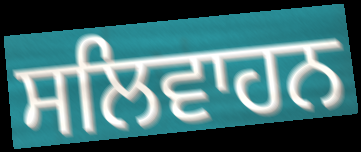
ਸਲਿਵਾਹਨ